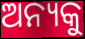
ଅନ୍ୟକୁ